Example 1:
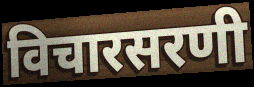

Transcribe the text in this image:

विचारसरणी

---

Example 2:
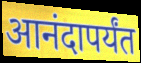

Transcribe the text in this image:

आनंदापर्यंत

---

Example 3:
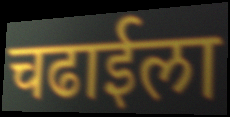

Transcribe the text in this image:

चढाईला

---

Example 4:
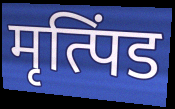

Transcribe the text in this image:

मृत्पिंड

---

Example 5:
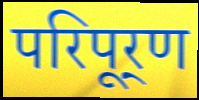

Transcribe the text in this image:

परिपूर्ण